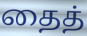
தைத்